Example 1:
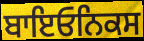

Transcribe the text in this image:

ਬਾਇਓਨਿਕਸ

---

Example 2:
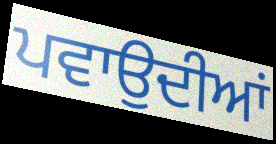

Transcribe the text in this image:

ਪਵਾਉਦੀਆਂ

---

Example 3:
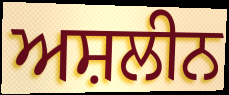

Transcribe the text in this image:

ਅਸ਼ਲੀਨ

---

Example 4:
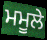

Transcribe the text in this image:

ਮਮੂਲੇ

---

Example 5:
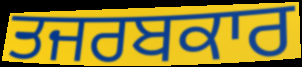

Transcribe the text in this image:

ਤਜਰਬਕਾਰ